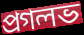
প্রগলভ